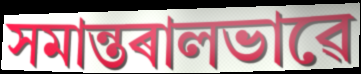
সমান্তৰালভাৱে